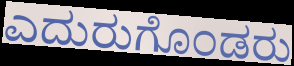
ಎದುರುಗೊಂಡರು